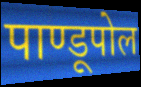
पाण्डूपोल